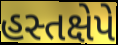
હસ્તક્ષેપે